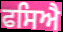
ਫਸਿਐ